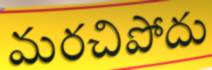
మరచిపోదు